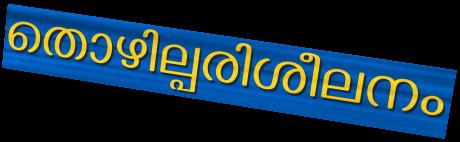
തൊഴില്പരിശീലനം